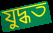
যুদ্ধত